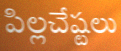
పిల్లచేష్టలు